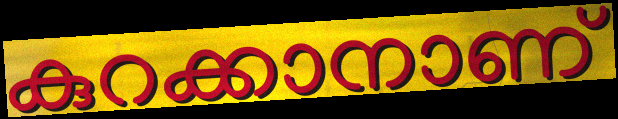
കുറക്കാനാണ്